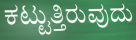
ಕಟ್ಟುತ್ತಿರುವುದು